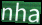
nha